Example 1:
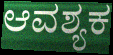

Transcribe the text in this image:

ಆವಶ್ಯಕ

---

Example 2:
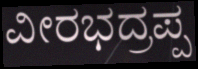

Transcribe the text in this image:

ವೀರಭದ್ರಪ್ಪ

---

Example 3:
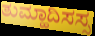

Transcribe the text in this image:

ತುಮ್ಹಾದಿಸಸ್ಸ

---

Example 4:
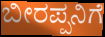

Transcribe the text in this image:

ಬೀರಪ್ಪನಿಗೆ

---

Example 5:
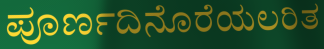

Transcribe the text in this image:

ಪೂರ್ಣದಿನೊರೆಯಲರಿತ